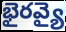
భైరవ్యై